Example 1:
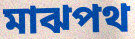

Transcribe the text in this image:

মাঝপথ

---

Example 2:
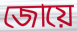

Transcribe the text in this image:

জোয়ে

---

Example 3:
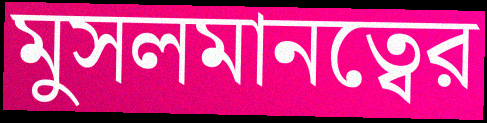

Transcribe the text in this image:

মুসলমানত্বের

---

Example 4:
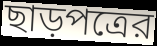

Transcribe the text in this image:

ছাড়পত্রের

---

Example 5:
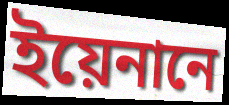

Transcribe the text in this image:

ইয়েনানে